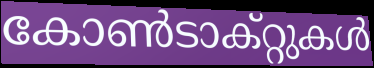
കോൺടാക്റ്റുകൾ